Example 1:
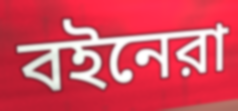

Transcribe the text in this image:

বইনেরা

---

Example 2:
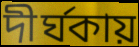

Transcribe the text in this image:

দীর্ঘকায়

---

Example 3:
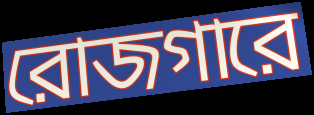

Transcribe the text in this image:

রোজগারে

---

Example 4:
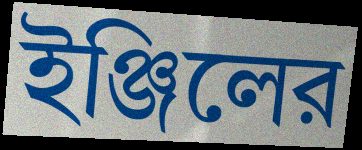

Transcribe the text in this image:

ইঞ্জিলের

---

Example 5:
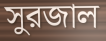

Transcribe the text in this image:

সুরজাল